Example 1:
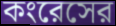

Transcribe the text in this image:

কংরেসের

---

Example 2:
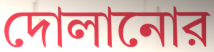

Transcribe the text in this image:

দোলানোর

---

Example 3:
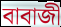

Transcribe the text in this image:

বাবাজী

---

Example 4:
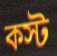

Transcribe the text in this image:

কস্ট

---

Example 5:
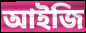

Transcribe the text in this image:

আইজি